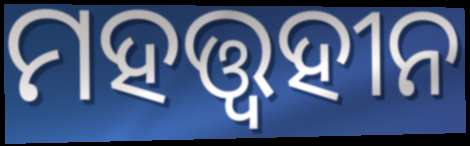
ମହତ୍ତ୍ବହୀନ